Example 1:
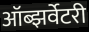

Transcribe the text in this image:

ऑब्झर्वेटरी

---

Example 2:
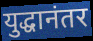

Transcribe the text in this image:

युद्धानंतर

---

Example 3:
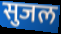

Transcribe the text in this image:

सुजल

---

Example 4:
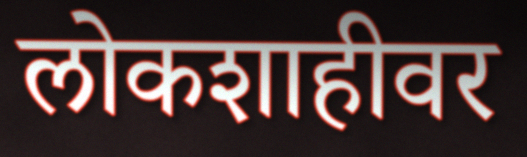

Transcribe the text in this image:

लोकशाहीवर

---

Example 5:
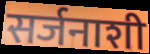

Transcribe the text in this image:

सर्जनाशी